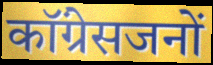
कॉंग्रेसजनों